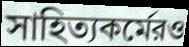
সাহিত্যকর্মেরও